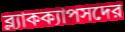
ব্ল্যাকক্যাপসদের